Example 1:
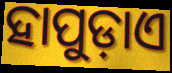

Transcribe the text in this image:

ହାପୁଡ଼ାଏ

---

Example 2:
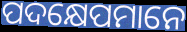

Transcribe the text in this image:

ପଦକ୍ଷେପମାନେ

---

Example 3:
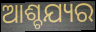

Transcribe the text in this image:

ଆଶ୍ଚଯ୍ୟର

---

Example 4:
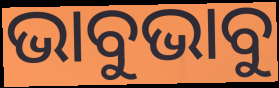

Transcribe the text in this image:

ଭାବୁଭାବୁ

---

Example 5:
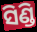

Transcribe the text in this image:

ସିଣ୍ଡି